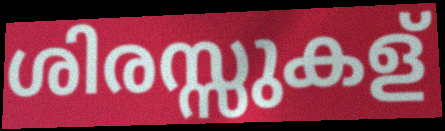
ശിരസ്സുകള്